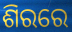
ଶିରରେ